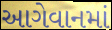
આગેવાનમાં